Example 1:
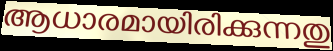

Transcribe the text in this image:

ആധാരമായിരിക്കുന്നതു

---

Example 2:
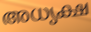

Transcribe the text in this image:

അധ്യക്ഷ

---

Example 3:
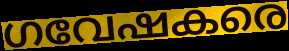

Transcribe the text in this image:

ഗവേഷകരെ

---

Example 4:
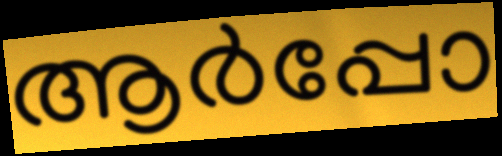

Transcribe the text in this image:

ആർപ്പോ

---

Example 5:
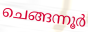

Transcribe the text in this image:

ചെങ്ങന്നൂർ